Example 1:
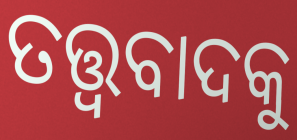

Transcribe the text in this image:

ତତ୍ତ୍ୱବାଦକୁ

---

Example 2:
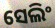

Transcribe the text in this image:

ସେଲିଂ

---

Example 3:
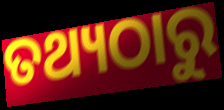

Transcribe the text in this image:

ତଥ୍ୟଠାରୁ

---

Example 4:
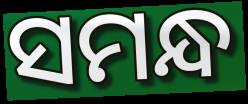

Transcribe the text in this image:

ସମନ୍ଧ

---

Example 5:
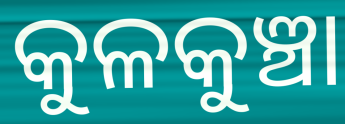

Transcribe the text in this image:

କୁଳକୁଞ୍ଚା